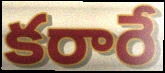
కరారే